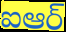
ఐఆర్